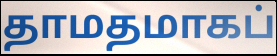
தாமதமாகப்